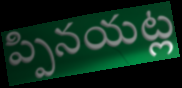
ప్పినయట్ల